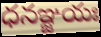
ధనఞ్జయః